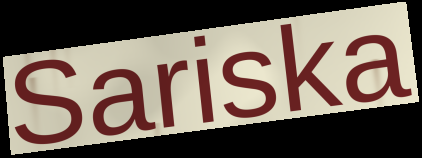
Sariska